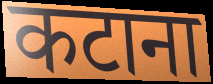
कटाना